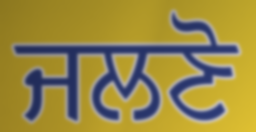
ਜਲਣੋ